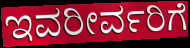
ಇವರೀರ್ವರಿಗೆ